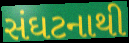
સંઘટનાથી